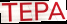
TEPA